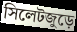
সিলেটজুড়ে